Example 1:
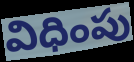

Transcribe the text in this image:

విధింపు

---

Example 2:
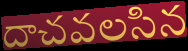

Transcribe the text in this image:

దాచవలసిన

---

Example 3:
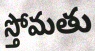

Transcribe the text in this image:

స్తోమతు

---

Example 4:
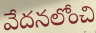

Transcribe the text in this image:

వేదనలోంచి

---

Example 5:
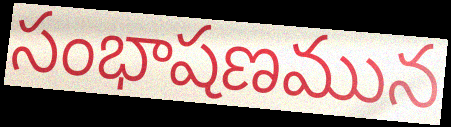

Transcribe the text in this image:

సంభాషణమున